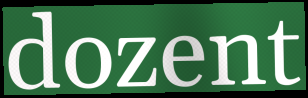
dozent